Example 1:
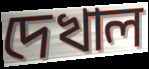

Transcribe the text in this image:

দেখাল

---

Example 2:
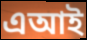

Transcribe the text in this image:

এআই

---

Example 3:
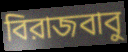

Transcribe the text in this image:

বিরাজবাবু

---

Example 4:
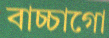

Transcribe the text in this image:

বাচ্চাগো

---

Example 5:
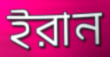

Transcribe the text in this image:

ইরান